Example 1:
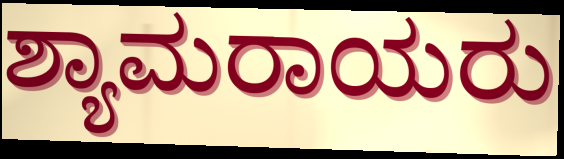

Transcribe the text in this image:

ಶ್ಯಾಮರಾಯರು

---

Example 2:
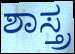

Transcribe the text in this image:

ಶಾಸ್ತ್ರ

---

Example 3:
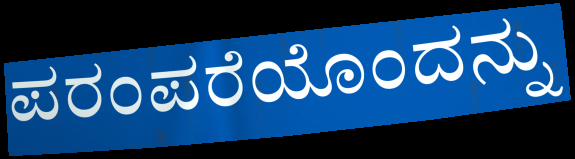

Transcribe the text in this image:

ಪರಂಪರೆಯೊಂದನ್ನು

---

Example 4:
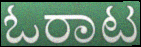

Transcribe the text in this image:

ಓರಾಟ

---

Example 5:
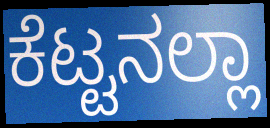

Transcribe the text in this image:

ಕೆಟ್ಟನಲ್ಲಾ